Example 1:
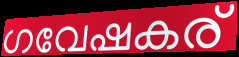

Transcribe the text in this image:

ഗവേഷകര്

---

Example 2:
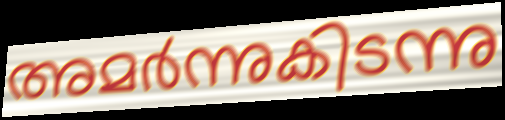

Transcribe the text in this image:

അമർന്നുകിടന്നു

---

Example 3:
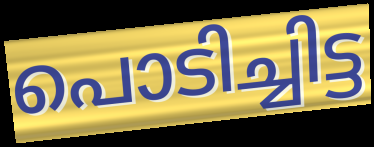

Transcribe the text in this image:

പൊടിച്ചിട്ട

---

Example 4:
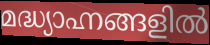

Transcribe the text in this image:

മദ്ധ്യാഹ്നങ്ങളിൽ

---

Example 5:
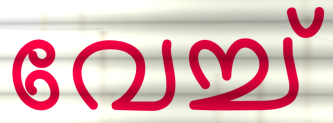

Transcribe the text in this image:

വേച്ച്